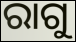
ରାଗୁ